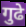
गुढे